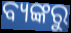
ବ୍ୟଙ୍କରୁ